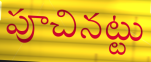
పూచినట్టు